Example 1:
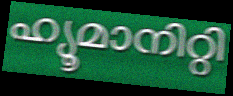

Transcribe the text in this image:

ഹ്യൂമാനിറ്റി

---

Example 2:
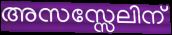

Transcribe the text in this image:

അസസ്സേലിന്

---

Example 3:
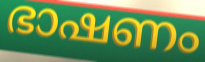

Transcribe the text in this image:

ഭാഷണം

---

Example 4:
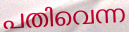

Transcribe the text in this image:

പതിവെന്ന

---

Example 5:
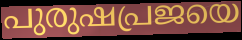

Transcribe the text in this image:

പുരുഷപ്രജയെ